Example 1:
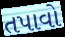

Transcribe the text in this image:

તપાવો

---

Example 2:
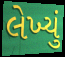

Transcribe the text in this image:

લેખ્યું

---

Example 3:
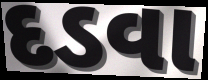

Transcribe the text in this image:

દડવા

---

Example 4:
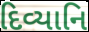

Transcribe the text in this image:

દિવ્યાનિ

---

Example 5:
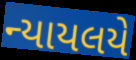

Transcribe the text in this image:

ન્યાયલયે